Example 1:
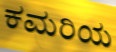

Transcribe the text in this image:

ಕಮರಿಯ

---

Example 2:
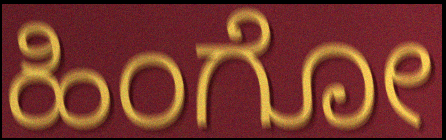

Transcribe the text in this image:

ಹಿಂಗೋ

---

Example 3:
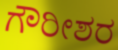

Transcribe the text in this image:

ಗೌರೀಶರ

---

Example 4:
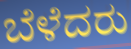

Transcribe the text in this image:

ಬೆಳೆದರು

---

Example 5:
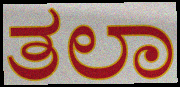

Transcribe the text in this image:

ತಲಾ